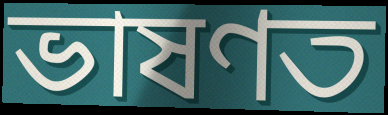
ভাষণত